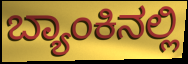
ಬ್ಯಾಂಕಿನಲ್ಲಿ